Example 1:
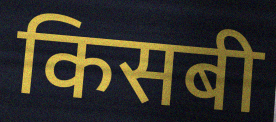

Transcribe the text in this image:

किसबी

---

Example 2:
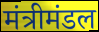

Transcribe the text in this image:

मंत्रीमंडल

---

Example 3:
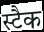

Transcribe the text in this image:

स्‍टैक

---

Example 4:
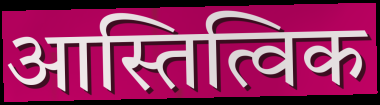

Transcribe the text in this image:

आस्तित्विक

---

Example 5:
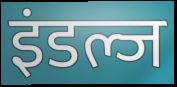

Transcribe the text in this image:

इंडल्ज